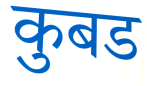
कुबड